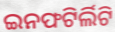
ଇନଫଟିର୍ଲିଟି